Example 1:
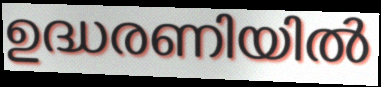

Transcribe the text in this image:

ഉദ്ധരണിയിൽ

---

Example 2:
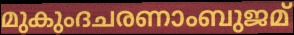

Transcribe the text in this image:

മുകുംദചരണാംബുജമ്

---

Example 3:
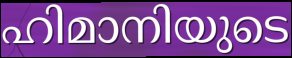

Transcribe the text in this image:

ഹിമാനിയുടെ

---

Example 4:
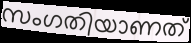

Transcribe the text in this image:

സംഗതിയാണത്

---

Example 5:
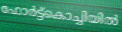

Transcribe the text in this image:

ഫോർട്ട്കൊച്ചിയിൽ